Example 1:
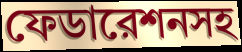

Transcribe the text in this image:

ফেডারেশনসহ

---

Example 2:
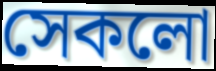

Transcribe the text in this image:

সেকলো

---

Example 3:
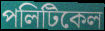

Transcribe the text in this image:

পলিটিকেল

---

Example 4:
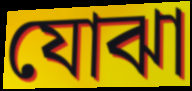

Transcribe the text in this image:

যোঝা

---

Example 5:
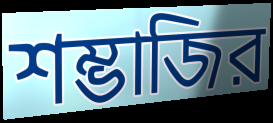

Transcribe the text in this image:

শম্ভাজির